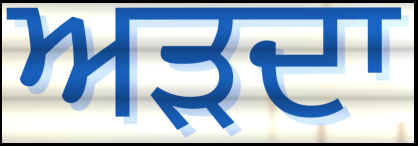
ਅੜਦਾ